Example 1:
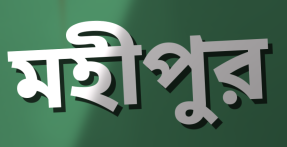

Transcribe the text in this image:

মহীপুর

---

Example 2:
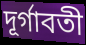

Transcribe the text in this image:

দূর্গাবতী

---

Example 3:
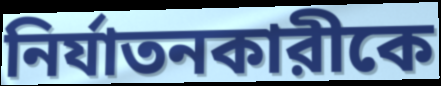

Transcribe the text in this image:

নির্যাতনকারীকে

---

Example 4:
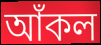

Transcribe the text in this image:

আঁকল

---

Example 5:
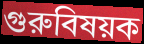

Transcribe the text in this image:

গুরুবিষয়ক